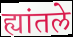
ह्यांतले